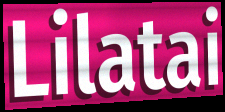
Lilatai